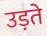
उड़ते